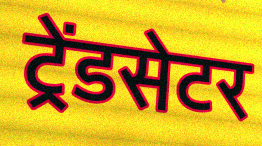
ट्रेंडसेटर